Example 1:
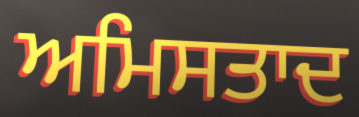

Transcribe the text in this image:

ਅਮਿਸਤਾਦ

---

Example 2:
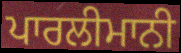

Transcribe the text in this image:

ਪਾਰਲੀਮਾਨੀ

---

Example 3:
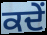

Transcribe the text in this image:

ਕਦੇਂ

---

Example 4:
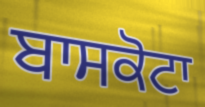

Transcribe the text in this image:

ਬਾਸਕੋਟਾ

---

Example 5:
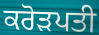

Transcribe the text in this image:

ਕਰੋੜਪਤੀ